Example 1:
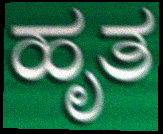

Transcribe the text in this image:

ಹೃತ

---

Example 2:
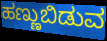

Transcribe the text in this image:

ಹಣ್ಣುಬಿಡುವ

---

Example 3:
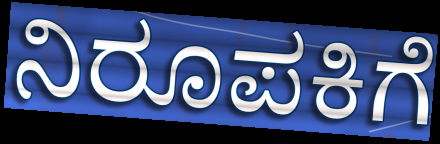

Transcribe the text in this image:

ನಿರೂಪಕಿಗೆ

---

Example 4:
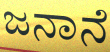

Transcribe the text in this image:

ಜನಾನೆ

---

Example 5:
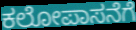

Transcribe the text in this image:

ಕಲೋಪಾಸನೆಗೆ